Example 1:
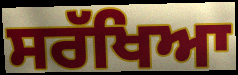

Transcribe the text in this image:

ਸਰੱਖਿਆ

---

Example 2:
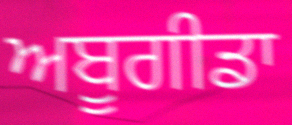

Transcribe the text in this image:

ਅਬੂਗੀਡਾ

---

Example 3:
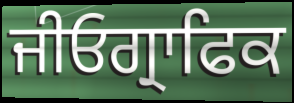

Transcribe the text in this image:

ਜੀਓਗ੍ਰਾਫਿਕ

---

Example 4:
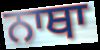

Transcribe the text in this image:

ਨਾਥਾ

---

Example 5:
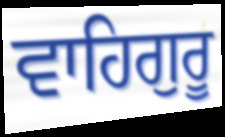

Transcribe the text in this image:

ਵਾਹਿਗੁਰੂ